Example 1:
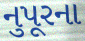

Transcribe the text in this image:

નુપૂરના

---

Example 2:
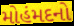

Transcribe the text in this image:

મોહંમદનો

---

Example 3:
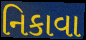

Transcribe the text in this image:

નિકાવા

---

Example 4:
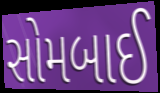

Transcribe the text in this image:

સોમબાઈ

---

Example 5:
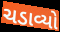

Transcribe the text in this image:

ચડાવ્યો